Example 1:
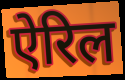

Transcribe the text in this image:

ऐरिल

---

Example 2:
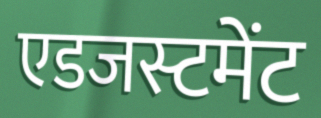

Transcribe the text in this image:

एडजस्‍टमेंट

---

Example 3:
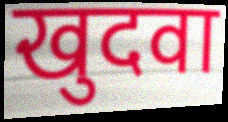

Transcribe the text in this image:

खुदवा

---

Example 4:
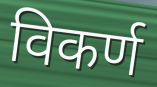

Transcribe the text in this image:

विकर्ण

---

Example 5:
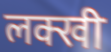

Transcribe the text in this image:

लक्खी